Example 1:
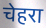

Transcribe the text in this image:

चेहरा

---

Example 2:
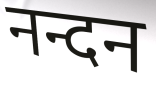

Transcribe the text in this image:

नन्दन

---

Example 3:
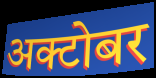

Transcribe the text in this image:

अक्टोबर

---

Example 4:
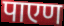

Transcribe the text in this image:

पाएण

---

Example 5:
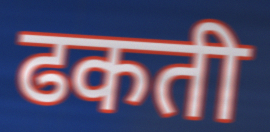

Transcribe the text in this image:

ढकती